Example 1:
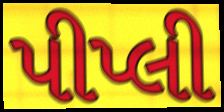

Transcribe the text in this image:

પીપ્લી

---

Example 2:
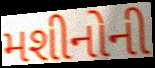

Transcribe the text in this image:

મશીનોની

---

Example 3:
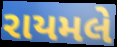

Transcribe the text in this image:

રાયમલે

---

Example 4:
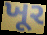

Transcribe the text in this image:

ખૂર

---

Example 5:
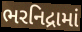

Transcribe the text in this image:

ભરનિદ્રામાં